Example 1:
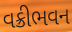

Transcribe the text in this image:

વક્રીભવન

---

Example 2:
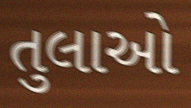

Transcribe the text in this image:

તુલાઓ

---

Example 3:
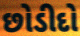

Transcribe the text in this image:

છોડીદો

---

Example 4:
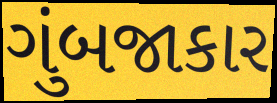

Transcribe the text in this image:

ગુંબજાકાર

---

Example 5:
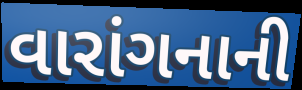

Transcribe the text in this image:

વારાંગનાની